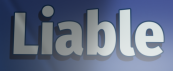
Liable